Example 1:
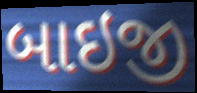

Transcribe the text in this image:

બાઇજી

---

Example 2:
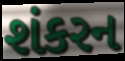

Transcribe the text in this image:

શંકરન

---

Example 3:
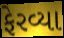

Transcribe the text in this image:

ફેરવ્યા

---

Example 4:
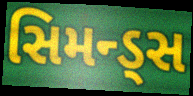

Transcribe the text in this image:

સિમન્ડ્સ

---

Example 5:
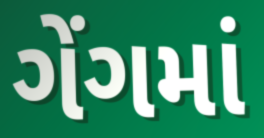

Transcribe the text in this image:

ગેંગમાં